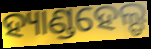
ହ୍ୟାଣ୍ଡହେଲ୍ଡ